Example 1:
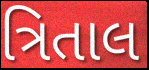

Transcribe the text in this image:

ત્રિતાલ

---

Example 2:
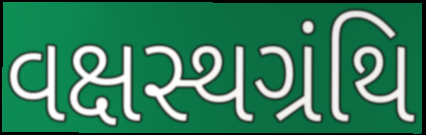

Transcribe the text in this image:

વક્ષસ્થગ્રંથિ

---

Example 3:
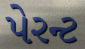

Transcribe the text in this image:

પેરન્ટ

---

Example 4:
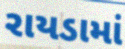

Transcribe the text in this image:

રાયડામાં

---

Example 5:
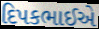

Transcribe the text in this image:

દિપકભાઈએ